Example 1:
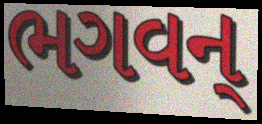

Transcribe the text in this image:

ભગવન્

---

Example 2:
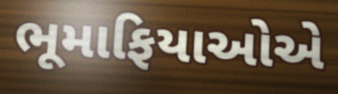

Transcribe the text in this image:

ભૂમાફિયાઓએ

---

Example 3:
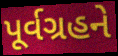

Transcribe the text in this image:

પૂર્વગ્રહને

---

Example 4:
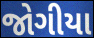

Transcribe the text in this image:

જોગીયા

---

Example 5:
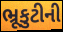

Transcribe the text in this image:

ભ્રૂકુટીની